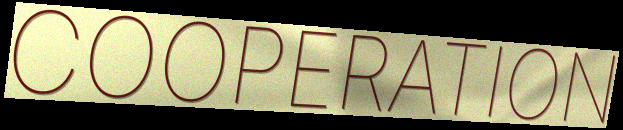
COOPERATION